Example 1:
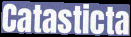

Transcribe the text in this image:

Catasticta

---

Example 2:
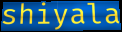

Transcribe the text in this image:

shiyala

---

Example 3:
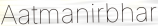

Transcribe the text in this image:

Aatmanirbhar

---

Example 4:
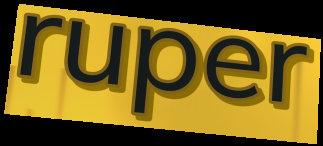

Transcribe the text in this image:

ruper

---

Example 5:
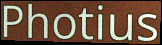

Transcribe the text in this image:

Photius